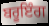
ਬਰੂਇੰਗ